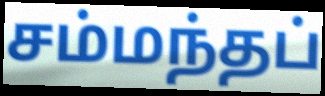
சம்மந்தப்